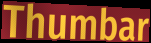
Thumbar